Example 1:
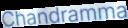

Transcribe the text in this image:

Chandramma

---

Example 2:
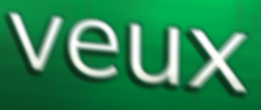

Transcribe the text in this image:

veux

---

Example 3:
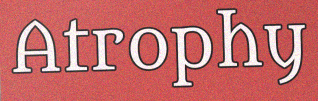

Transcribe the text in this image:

Atrophy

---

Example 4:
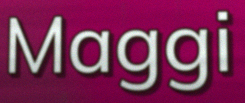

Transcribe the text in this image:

Maggi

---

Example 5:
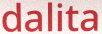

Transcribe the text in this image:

dalita